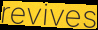
revives